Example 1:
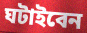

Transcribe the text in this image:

ঘটাইবেন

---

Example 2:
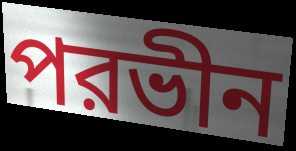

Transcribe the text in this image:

পরভীন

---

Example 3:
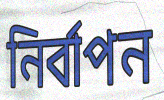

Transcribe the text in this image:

নির্বাপন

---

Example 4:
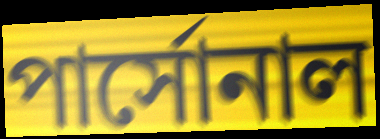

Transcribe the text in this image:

পার্সোনাল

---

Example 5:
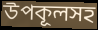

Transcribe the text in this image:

উপকূলসহ